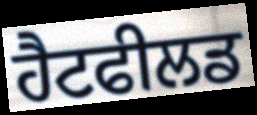
ਹੈਟਫੀਲਡ